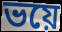
ভয়ে